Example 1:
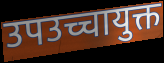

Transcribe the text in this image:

उपउच्चायुक्त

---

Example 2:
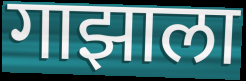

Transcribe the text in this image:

गाझाला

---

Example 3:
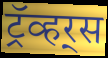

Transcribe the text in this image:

ट्रॅव्हर्स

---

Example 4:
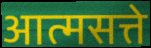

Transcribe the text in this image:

आत्मसत्ते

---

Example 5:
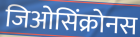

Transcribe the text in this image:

जिओसिंक्रोनस